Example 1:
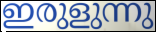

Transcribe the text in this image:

ഇരുളുന്നു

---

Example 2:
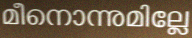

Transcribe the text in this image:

മീനൊന്നുമില്ലേ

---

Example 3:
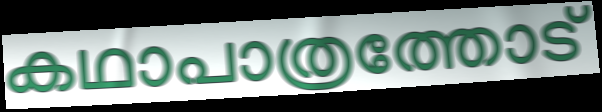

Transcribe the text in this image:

കഥാപാത്രത്തോട്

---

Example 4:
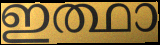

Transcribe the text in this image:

ഇത്ഥാ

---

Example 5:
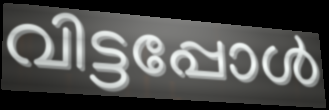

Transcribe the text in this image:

വിട്ടപ്പോൾ